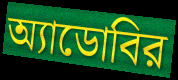
অ্যাডোবির